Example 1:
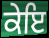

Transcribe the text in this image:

ਕੇਇ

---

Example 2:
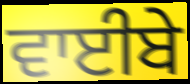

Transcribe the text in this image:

ਵਾਈਬੇ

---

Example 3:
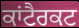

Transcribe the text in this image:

ਕਾਂਟੈਰਕਟ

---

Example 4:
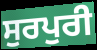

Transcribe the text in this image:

ਸੁਰਪੁਰੀ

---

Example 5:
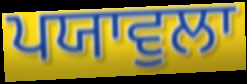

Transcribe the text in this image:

ਪਯਾਵੁਲਾ